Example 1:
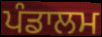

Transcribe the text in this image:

ਪੰਡਾਲਮ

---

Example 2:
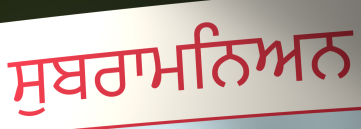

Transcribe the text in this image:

ਸੁਬਰਾਮਨਿਅਨ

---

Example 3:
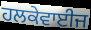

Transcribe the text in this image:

ਹਲਕੇਵਾਈਜ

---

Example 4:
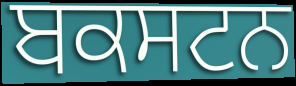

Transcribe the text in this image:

ਬਕਸਟਨ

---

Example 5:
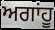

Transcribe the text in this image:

ਅਗਾਂਹੂ